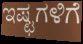
ಇಷ್ಟಗಳಿಗೆ